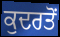
ਕੁਦਰਤੋਂ